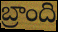
బ్రాంది